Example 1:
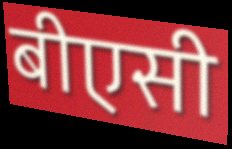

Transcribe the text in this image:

बीएसी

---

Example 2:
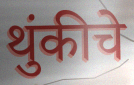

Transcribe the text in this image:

थुंकीचे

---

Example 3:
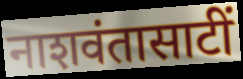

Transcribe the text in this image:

नाशवंतासाटीं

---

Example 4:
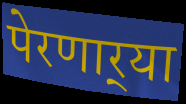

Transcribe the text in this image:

पेरणार्या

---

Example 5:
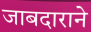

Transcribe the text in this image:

जाबदाराने